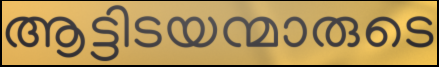
ആട്ടിടയന്മാരുടെ